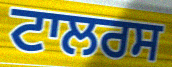
ਟਾਲਰਸ